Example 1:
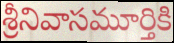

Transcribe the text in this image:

శ్రీనివాసమూర్తికి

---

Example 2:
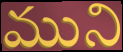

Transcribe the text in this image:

ముని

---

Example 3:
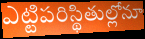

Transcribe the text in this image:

ఎట్టిపరిస్థితుల్లోనూ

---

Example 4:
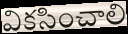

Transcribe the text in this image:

వికసించాలి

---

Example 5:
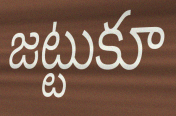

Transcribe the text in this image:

జట్టుకూ